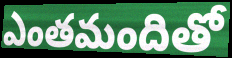
ఎంతమందితో